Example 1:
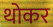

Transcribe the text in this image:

थोकर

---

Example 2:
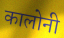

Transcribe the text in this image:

कालोनी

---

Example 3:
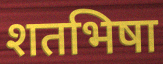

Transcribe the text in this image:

शतभिषा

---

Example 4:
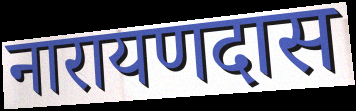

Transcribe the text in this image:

नारायणदास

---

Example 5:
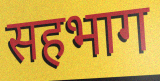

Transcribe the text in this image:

सहभाग